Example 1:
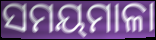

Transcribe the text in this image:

ସମୟମାଳା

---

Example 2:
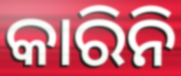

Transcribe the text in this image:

କାରିନି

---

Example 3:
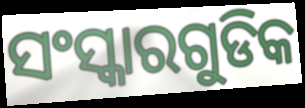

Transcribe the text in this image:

ସଂସ୍କାରଗୁଡିକ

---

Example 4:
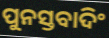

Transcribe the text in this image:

ପୁନସ୍ତବାଦିଂ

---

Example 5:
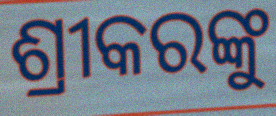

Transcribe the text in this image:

ଶ୍ରୀକରଙ୍କୁ